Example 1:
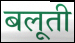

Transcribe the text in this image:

बलूती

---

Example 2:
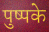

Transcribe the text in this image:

पुष्पके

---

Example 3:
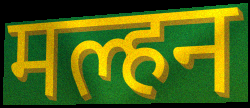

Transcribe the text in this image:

मल्हन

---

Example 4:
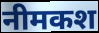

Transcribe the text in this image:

नीमकश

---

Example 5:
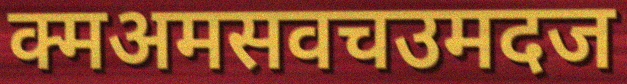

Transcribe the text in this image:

क्मअमसवचउमदज